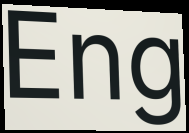
Eng